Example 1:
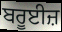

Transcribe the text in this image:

ਬਰੂਈਜ਼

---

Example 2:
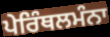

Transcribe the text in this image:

ਪੇਰਿੰਥਲਮੰਨਾ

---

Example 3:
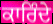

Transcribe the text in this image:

ਕਾਰਿੰਦੇ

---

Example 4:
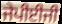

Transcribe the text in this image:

ਜੇਪੀਈਜੀ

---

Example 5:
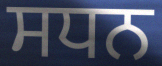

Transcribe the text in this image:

ਸਧਨ